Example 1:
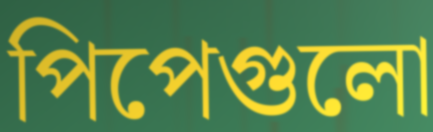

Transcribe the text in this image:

পিপেগুলো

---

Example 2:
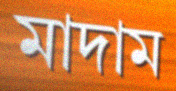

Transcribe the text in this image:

মাদাম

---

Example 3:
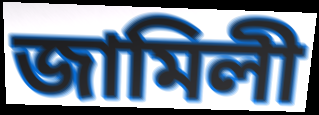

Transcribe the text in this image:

জামিলী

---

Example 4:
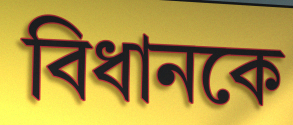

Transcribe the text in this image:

বিধানকে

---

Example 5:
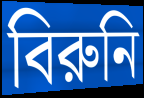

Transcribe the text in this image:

বিরুনি